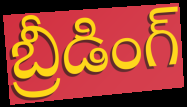
బ్రీడింగ్